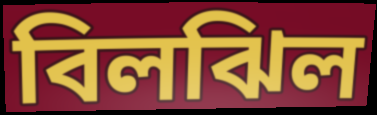
বিলঝিল